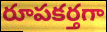
రూపకర్తగా